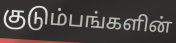
குடும்பங்களின்